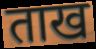
ताख